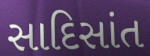
સાદિસાંત